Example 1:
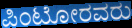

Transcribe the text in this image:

ಪಿಂಟೋರವರು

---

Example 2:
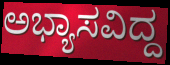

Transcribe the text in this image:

ಅಭ್ಯಾಸವಿದ್ದ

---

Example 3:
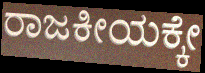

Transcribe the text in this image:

ರಾಜಕೀಯಕ್ಕೇ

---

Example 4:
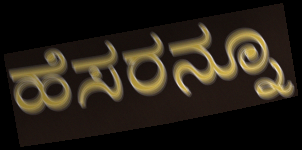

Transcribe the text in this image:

ಹೆಸರನ್ನೂ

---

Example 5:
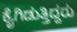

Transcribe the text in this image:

ಕೈಗಿಡುತ್ತಿದ್ದರು